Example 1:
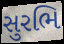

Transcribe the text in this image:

સુરભિ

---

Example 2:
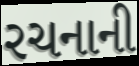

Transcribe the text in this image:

રચનાની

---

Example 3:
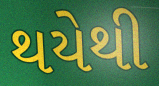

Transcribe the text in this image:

થયેથી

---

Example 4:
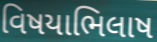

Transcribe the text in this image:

વિષયાભિલાષ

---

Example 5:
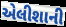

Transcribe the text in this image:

એલીશાની